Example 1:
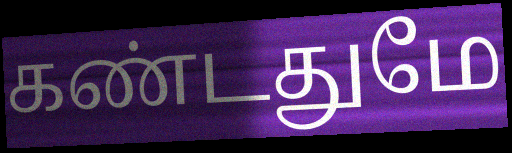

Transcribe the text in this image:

கண்டதுமே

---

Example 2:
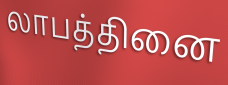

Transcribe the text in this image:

லாபத்தினை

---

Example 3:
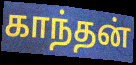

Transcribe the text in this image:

காந்தன்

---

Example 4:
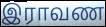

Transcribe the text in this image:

இராவண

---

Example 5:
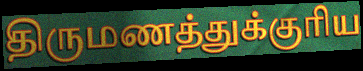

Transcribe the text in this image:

திருமணத்துக்குரிய